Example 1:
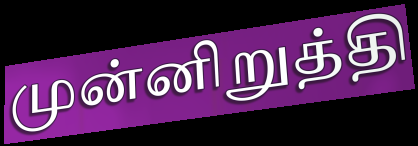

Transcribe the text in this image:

முன்னிறுத்தி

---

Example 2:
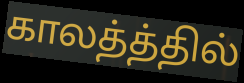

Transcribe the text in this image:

காலத்த்தில்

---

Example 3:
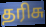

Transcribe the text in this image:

தரிசு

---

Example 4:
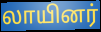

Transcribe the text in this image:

லாயினர்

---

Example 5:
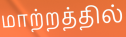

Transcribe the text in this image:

மாற்றத்தில்